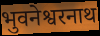
भुवनेश्वरनाथ